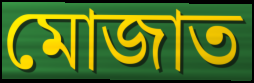
মোজাত